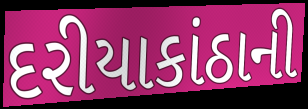
દરીયાકાંઠાની